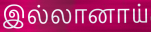
இல்லானாய்